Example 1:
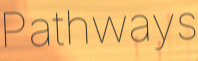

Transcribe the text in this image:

Pathways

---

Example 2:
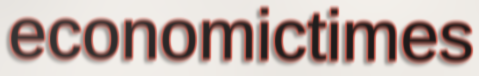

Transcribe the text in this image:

economictimes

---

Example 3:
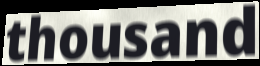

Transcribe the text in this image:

thousand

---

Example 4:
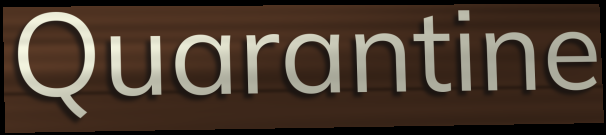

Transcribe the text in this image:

Quarantine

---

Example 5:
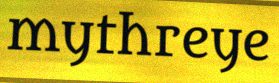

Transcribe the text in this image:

mythreye